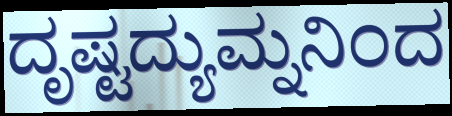
ದೃಷ್ಟದ್ಯುಮ್ನನಿಂದ